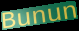
Bunun